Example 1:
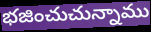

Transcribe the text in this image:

భజించుచున్నాము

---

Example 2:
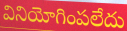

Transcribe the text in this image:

వినియోగింపలేదు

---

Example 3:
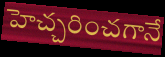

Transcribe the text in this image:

హెచ్చరించగానే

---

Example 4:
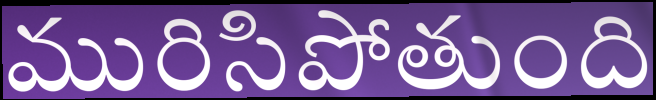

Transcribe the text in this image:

మురిసిపోతుంది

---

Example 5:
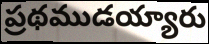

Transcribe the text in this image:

ప్రథముడయ్యారు